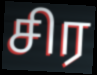
சிர